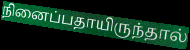
நினைப்பதாயிருந்தால்